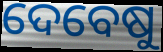
ଦେବେଷୁ